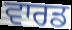
ਵਾਰਡ